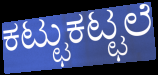
ಕಟ್ಟುಕಟ್ಟಲೆ